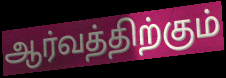
ஆர்வத்திற்கும்